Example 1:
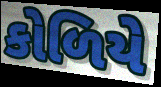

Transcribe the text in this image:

કોળિયે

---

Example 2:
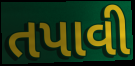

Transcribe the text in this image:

તપાવી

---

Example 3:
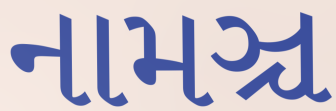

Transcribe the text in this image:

નામઞ્ચ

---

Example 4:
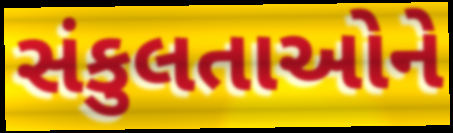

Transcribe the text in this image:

સંકુલતાઓને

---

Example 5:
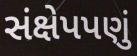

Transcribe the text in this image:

સંક્ષેપપણું